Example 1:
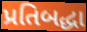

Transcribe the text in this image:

પ્રતિબદ્ધા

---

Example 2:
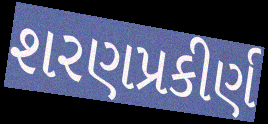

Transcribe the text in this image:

શરણપ્રકીર્ણ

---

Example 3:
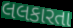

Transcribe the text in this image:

લલકારતા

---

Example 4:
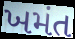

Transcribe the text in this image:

ખમંત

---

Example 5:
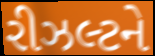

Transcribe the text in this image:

રીઝલ્ટને